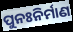
ପୁନଃନିର୍ମାଣ